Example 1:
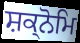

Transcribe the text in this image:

ਸ਼ਕ੍ਨੋਮਿ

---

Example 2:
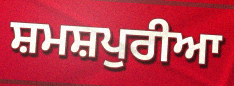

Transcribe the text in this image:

ਸ਼ਮਸ਼ਪੁਰੀਆ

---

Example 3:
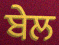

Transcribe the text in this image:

ਬੇਲ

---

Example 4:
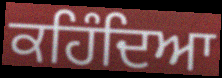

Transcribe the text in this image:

ਕਹਿੰਦਿਆ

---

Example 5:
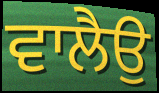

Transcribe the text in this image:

ਵਾਲੈਉ